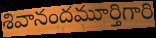
శివానందమూర్తిగారి